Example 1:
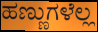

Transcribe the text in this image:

ಹಣ್ಣುಗಳೆಲ್ಲ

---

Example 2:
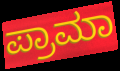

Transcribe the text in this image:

ಪ್ರಾಮಾ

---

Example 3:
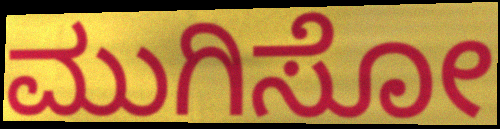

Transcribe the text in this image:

ಮುಗಿಸೋ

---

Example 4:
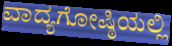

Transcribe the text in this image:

ವಾದ್ಯಗೋಷ್ಠಿಯಲ್ಲಿ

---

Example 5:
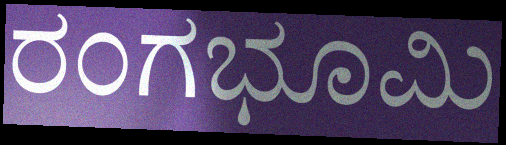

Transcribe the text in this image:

ರಂಗಭೂಮಿ